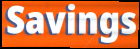
Savings